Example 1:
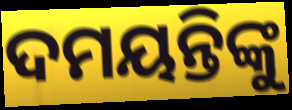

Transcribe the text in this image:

ଦମୟନ୍ତିଙ୍କୁ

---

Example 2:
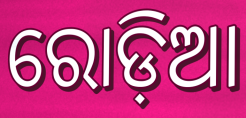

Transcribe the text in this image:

ରୋଡ଼ିଆ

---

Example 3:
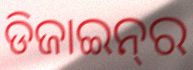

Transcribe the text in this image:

ଡିଜାଇନ୍‌ର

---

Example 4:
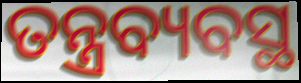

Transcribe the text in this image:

ତନ୍ତ୍ରବ୍ୟବସ୍ଥ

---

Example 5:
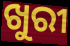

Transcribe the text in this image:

ଖୁରୀ